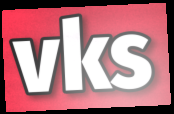
vks